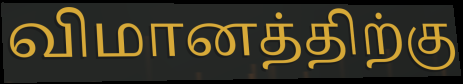
விமானத்திற்கு